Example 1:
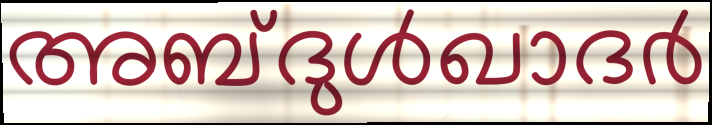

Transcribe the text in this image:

അബ്ദുൾഖാദർ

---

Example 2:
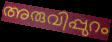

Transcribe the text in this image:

അരുവിപ്പുറം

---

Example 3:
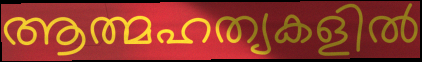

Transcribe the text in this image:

ആത്മഹത്യകളിൽ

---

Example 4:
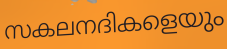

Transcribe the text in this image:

സകലനദികളെയും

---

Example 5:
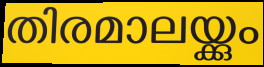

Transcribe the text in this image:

തിരമാലയ്ക്കും